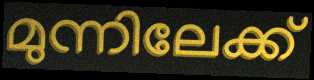
മുന്നിലേക്ക്